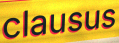
clausus